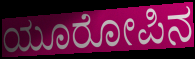
ಯೂರೋಪಿನ